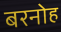
बरनोह